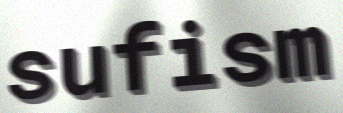
sufism